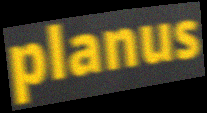
planus